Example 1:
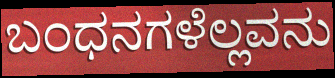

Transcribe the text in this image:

ಬಂಧನಗಳೆಲ್ಲವನು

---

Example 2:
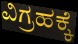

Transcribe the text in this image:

ವಿಗ್ರಹಕ್ಕೆ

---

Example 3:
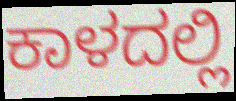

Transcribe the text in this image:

ಕಾಳದಲ್ಲಿ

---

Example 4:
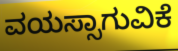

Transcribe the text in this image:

ವಯಸ್ಸಾಗುವಿಕೆ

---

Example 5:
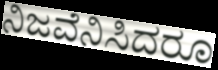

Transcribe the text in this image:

ನಿಜವೆನಿಸಿದರೂ